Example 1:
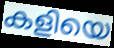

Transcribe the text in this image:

കളിയെ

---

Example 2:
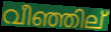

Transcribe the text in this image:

വീഞ്ഞില്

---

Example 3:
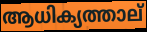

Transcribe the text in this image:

ആധിക്യത്താല്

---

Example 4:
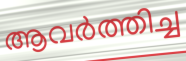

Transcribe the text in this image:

ആവർത്തിച്ച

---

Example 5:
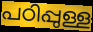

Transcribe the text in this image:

പഠിപ്പുള്ള